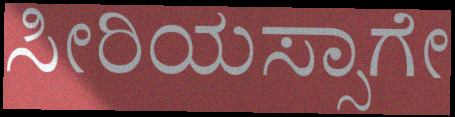
ಸೀರಿಯಸ್ಸಾಗೇ